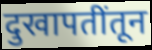
दुखापतींतून